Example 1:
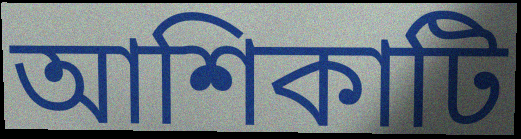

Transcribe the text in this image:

আশিকাটি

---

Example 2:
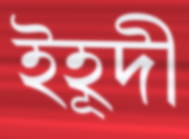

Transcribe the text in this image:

ইহূদী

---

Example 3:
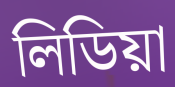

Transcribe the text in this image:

লিডিয়া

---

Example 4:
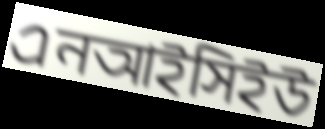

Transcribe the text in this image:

এনআইসিইউ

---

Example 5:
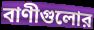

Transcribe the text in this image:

বাণীগুলোর